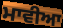
ਮਾਵੀਆ